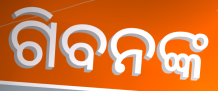
ଗିବନଙ୍କ